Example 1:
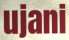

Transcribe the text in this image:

ujani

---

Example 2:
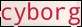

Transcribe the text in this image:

cyborg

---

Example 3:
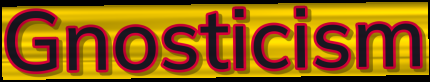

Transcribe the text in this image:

Gnosticism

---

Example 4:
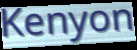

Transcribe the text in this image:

Kenyon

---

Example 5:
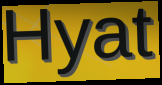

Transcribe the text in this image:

Hyat